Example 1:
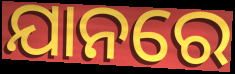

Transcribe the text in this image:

ଯାନରେ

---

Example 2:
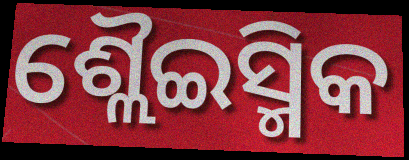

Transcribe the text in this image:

ଶ୍ଲୈଇସ୍ମିକ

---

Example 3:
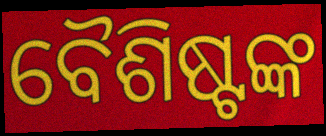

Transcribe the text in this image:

ବୈଶିଷ୍ଟଙ୍କ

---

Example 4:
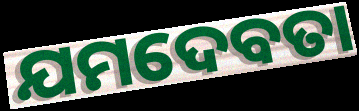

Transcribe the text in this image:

ଯମଦେବତା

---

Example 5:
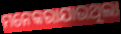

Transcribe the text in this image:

ମନେକରାଯାଉଥିଲା